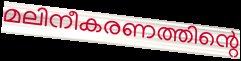
മലിനീകരണത്തിന്റെ